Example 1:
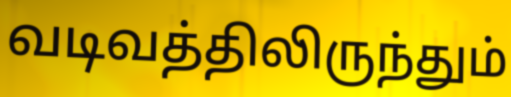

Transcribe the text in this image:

வடிவத்திலிருந்தும்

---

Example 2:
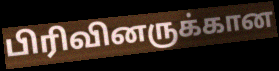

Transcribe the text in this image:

பிரிவினருக்கான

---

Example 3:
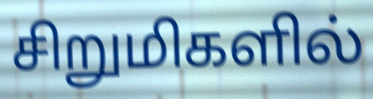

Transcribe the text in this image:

சிறுமிகளில்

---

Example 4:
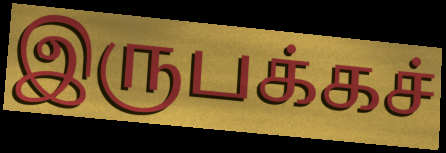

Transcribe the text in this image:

இருபக்கச்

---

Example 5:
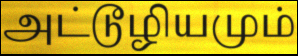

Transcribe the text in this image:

அட்டூழியமும்